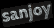
sanjoy